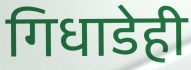
गिधाडेही